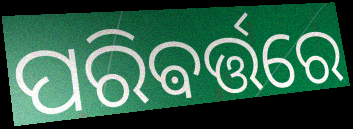
ପରିଵର୍ତ୍ତରେ